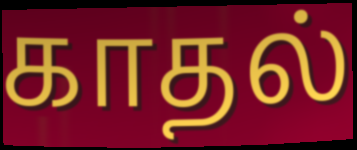
காதல்